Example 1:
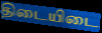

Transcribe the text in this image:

திடையிடை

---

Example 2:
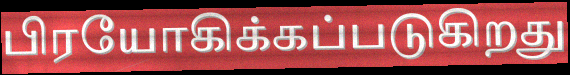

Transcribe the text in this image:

பிரயோகிக்கப்படுகிறது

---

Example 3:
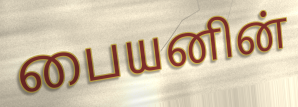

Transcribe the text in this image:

பையனின்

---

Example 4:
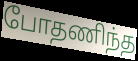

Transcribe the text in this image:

போதணிந்த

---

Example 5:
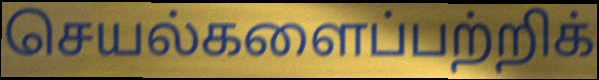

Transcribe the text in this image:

செயல்களைப்பற்றிக்